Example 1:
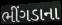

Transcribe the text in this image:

ભીંગડાના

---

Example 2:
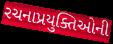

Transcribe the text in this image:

રચનાપ્રયુક્તિઓની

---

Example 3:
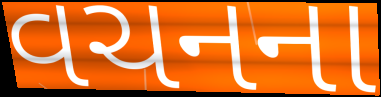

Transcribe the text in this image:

વચનના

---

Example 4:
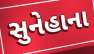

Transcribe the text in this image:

સુનેહાના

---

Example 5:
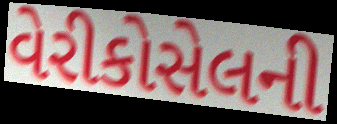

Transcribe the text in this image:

વેરીકોસેલની